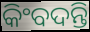
କିଂବଦନ୍ତି